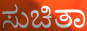
ಸುಚಿತಾ